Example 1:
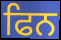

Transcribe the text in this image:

ਫਿਨ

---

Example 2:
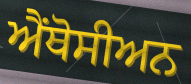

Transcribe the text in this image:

ਐਂਥੋਸੀਅਨ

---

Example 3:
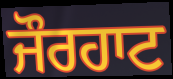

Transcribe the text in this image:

ਜੌਰਹਾਟ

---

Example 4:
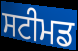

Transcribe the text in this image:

ਸਟੀਮਡ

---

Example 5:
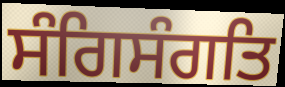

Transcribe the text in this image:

ਸੰਗਿਸੰਗਤਿ